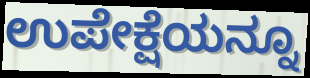
ಉಪೇಕ್ಷೆಯನ್ನೂ